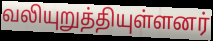
வலியுறுத்தியுள்ளனர்